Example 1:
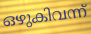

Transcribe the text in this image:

ഒഴുകിവന്ന്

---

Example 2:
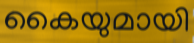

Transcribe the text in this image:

കൈയുമായി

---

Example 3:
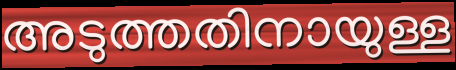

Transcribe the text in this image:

അടുത്തതിനായുള്ള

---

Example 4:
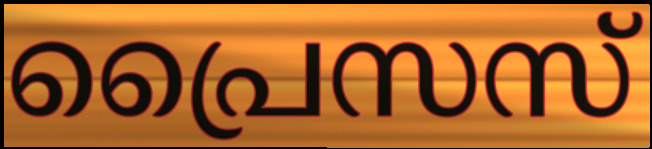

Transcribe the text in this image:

പ്രൈസസ്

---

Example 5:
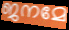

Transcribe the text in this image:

ജനമേ